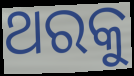
ଥରକୁ